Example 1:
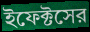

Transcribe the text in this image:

ইফেক্টসের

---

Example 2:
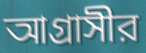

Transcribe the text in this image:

আগ্রাসীর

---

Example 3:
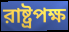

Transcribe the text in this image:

রাষ্ট্রপক্ষ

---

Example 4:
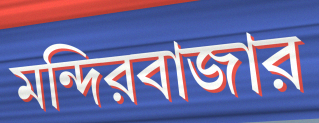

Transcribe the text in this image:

মন্দিরবাজার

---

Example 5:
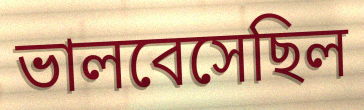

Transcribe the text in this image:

ভালবেসেছিল